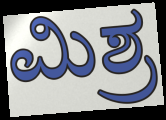
ಮಿಶ್ರ